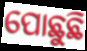
ପୋଛୁଛି